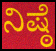
ನಿಷ್ಠೆ